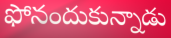
ఫోనందుకున్నాడు